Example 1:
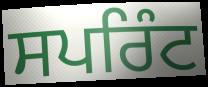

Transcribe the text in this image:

ਸਪਰਿੰਟ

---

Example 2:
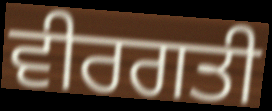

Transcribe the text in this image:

ਵੀਰਗਤੀ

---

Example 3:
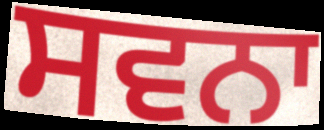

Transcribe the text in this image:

ਸਵਨਾ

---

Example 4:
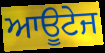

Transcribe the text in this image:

ਆਊਟੇਜ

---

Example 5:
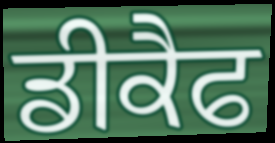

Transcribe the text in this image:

ਡੀਕੈਫ